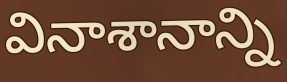
వినాశానాన్ని